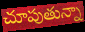
చూపుతున్నా